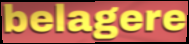
belagere